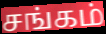
சங்கம்